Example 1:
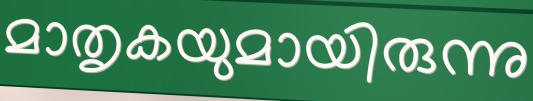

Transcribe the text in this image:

മാതൃകയുമായിരുന്നു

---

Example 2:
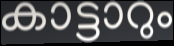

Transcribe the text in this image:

കാട്ടാറും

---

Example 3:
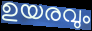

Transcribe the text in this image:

ഉയരവും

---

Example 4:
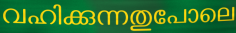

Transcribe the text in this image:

വഹിക്കുന്നതുപോലെ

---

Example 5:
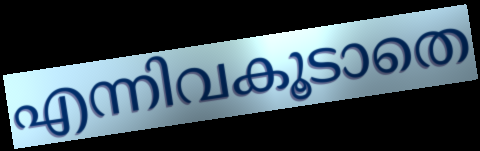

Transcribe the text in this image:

എന്നിവകൂടാതെ